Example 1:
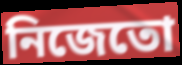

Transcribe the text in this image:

নিজেতো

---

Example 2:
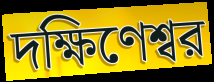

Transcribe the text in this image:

দক্ষিণেশ্বর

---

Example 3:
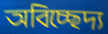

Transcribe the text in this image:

অবিচ্ছেদ্য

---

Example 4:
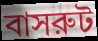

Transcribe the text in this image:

বাসরুট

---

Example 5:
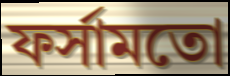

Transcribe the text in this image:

ফর্সামতো